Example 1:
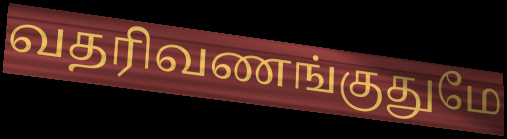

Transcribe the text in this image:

வதரிவணங்குதுமே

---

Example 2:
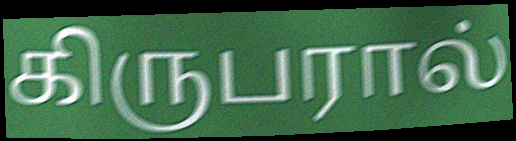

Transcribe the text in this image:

கிருபரால்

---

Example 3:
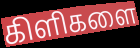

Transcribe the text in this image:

கிளிகளை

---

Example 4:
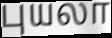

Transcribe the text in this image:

புயலா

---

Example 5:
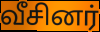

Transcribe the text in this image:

வீசினர்